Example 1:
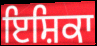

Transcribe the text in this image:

ਇਸ਼ਿਕਾ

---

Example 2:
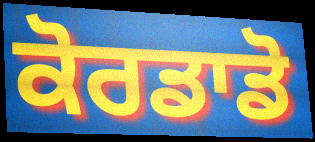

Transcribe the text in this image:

ਕੋਰਡਾਡੋ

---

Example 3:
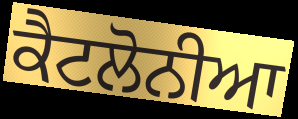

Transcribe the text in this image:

ਕੈਟਲੋਨੀਆ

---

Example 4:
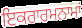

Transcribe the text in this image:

ਇਕਰਾਰਮਨਾਮਾਂ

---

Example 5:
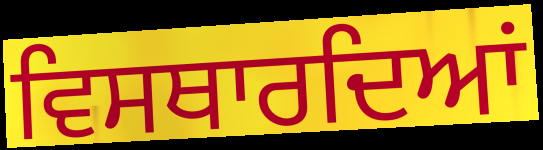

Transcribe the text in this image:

ਵਿਸਥਾਰਦਿਆਂ